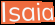
Isaia